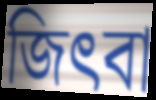
জিৎবা